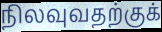
நிலவுவதற்குக்